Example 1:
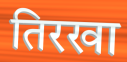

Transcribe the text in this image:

तिरखा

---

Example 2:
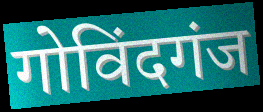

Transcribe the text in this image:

गोविंदगंज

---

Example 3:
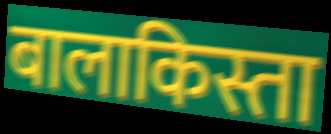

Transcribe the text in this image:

बालाकिस्ता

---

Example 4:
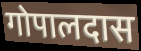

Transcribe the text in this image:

गोपालदास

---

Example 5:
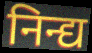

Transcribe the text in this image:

निन्द्य